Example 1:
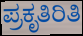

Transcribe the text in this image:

ಪ್ರಕೃತಿರಿತಿ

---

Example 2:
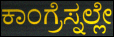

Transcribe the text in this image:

ಕಾಂಗ್ರೆಸ್ನಲ್ಲೇ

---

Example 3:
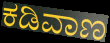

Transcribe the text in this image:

ಕಡಿವಾಣ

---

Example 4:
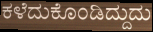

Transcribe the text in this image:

ಕಳೆದುಕೊಂಡಿದ್ದುದು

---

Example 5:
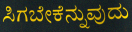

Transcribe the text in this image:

ಸಿಗಬೇಕೆನ್ನುವುದು